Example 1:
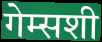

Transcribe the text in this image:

गेम्सशी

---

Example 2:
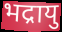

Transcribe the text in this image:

भद्रायु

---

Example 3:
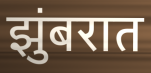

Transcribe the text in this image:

झुंबरात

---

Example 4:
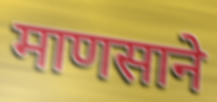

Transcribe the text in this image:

माणसाने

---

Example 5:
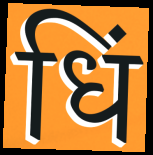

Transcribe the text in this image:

धिं